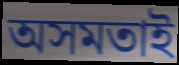
অসমতাই